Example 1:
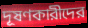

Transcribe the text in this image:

দূষণকারীদের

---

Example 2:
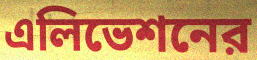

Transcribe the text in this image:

এলিভেশনের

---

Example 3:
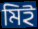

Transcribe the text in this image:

মিই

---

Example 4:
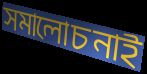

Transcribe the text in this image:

সমালোচনাই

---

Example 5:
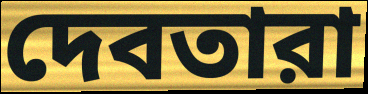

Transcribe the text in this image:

দেবতারা